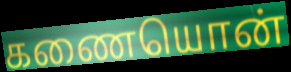
கணையொன்